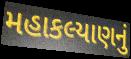
મહાકલ્યાણનું